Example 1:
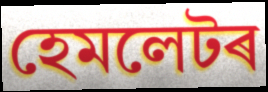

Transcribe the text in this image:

হেমলেটৰ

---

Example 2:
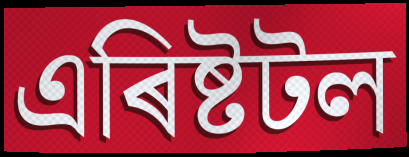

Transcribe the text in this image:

এৰিষ্টটল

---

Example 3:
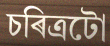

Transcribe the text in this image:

চৰিত্ৰটো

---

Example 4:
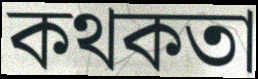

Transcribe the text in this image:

কথকতা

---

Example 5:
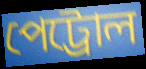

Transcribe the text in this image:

পেট্ৰোল